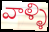
వాళ్ళి